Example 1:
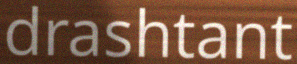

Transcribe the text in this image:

drashtant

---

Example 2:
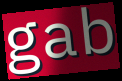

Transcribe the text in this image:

gab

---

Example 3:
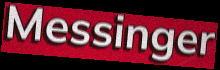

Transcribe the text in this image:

Messinger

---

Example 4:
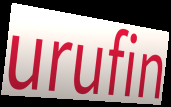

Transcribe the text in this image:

urufin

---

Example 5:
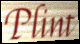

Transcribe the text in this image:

Plint